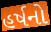
હર્ષનો